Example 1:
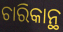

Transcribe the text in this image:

ଚାରିକାନ୍ଥ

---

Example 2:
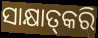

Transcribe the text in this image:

ସାକ୍ଷାତ୍‌କରି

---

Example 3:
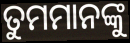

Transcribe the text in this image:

ତୁମମାନଙ୍କୁ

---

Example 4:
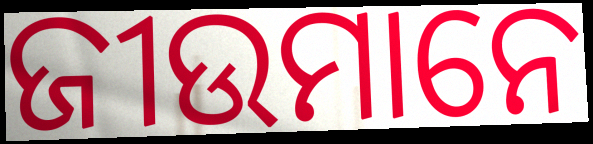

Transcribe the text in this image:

ଜୀଉମାନେ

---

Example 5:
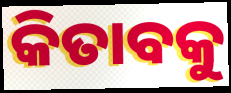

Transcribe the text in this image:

କିତାବକୁ